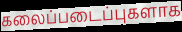
கலைப்படைப்புகளாக